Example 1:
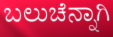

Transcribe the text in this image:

ಬಲುಚೆನ್ನಾಗಿ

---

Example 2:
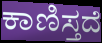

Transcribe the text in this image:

ಕಾಣಿಸ್ತದೆ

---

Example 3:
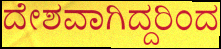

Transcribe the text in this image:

ದೇಶವಾಗಿದ್ದರಿಂದ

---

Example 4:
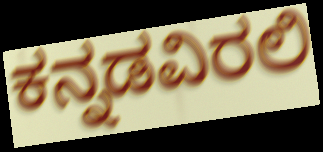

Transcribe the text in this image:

ಕನ್ನಡವಿರಲಿ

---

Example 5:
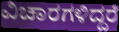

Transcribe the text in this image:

ವಿಚಾರಗಳಿದ್ದರೆ